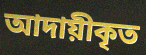
আদায়ীকৃত